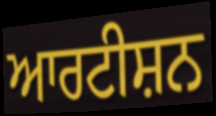
ਆਰਟੀਸ਼ਨ